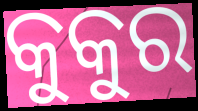
କୁକୁର